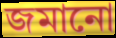
জমানো